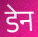
डेन